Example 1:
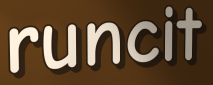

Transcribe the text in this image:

runcit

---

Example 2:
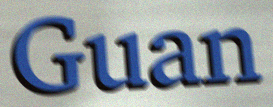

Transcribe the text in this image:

Guan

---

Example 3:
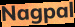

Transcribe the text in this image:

Nagpal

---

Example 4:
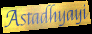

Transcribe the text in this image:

Astadhyayi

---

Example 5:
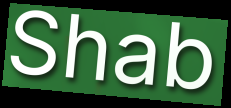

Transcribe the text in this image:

Shab